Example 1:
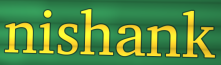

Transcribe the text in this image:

nishank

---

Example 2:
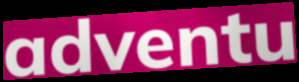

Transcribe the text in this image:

adventu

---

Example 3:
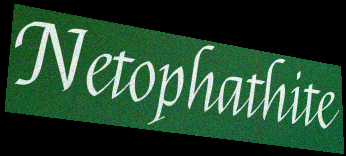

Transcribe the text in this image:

Netophathite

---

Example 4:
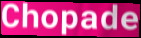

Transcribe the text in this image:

Chopade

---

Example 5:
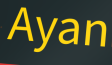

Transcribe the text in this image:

Ayan